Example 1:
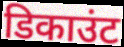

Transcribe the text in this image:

डिकाउंट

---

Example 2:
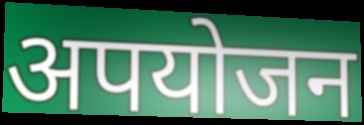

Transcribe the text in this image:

अपयोजन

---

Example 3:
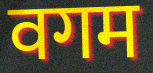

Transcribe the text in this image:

वगम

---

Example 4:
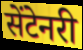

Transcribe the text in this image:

सेंटेनरी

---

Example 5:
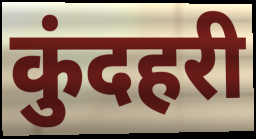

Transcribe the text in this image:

कुंदहरी